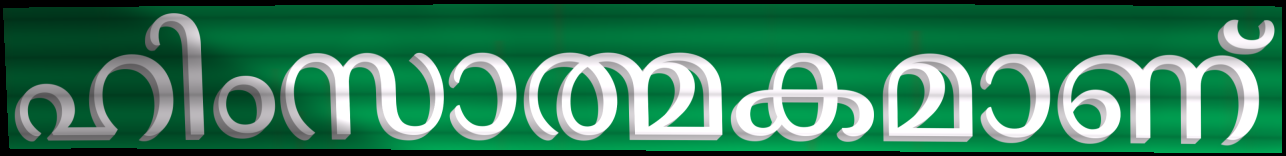
ഹിംസാത്മകമാണ്